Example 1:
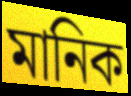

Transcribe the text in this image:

মানিক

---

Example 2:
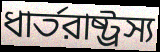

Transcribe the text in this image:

ধার্তরাষ্ট্রস্য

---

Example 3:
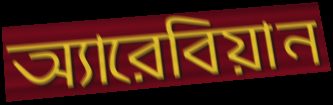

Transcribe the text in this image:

অ্যারেবিয়ান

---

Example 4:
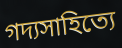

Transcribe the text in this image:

গদ্যসাহিত্যে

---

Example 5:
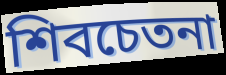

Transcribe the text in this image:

শিবচেতনা